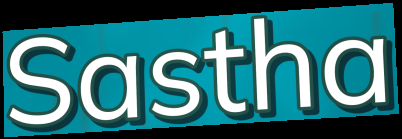
Sastha